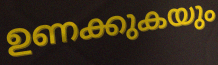
ഉണക്കുകയും